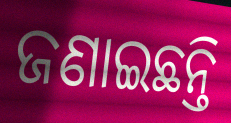
ଜଣାଇଛନ୍ତି